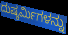
ದುಷ್ಕರ್ಮಿಗಳನ್ನು